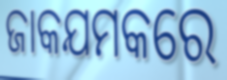
ଜାକଯମକରେ